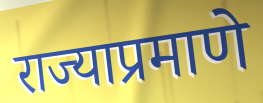
राज्याप्रमाणे